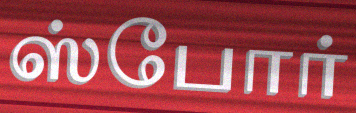
ஸ்போர்